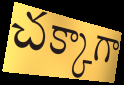
చక్కాగా